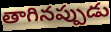
తాగినప్పుడు